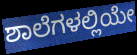
ಶಾಲೆಗಳಲ್ಲಿಯೇ